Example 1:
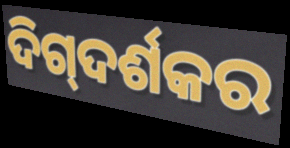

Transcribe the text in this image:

ଦିଗ୍‍ଦର୍ଶକର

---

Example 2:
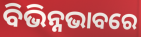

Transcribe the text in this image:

ବିଭିନ୍ନଭାବରେ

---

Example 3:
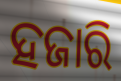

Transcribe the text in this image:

ହଜାରି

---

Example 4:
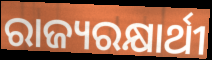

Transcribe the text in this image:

ରାଜ୍ୟରକ୍ଷାର୍ଥୀ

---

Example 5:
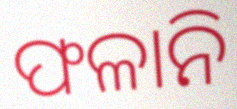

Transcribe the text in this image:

ଫଳାନି